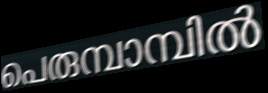
പെരുമ്പാമ്പിൽ